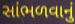
સાંભળવાનું